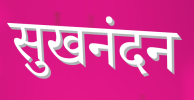
सुखनंदन